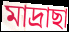
মাদ্ৰাছা